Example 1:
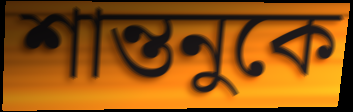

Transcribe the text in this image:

শান্তনুকে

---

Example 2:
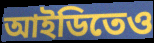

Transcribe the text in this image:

আইডিতেও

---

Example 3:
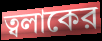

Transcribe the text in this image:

ত্বলাকের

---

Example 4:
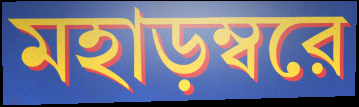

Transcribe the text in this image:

মহাড়ম্বরে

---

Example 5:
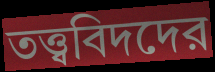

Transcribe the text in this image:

তত্ত্ববিদদের